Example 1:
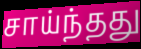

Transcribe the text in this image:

சாய்ந்தது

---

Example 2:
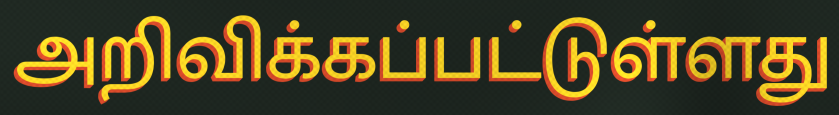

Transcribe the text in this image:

அறிவிக்கப்பட்டுள்ளது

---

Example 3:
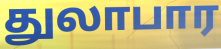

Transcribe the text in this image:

துலாபார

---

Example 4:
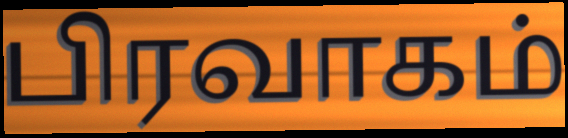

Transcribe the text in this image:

பிரவாகம்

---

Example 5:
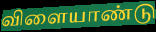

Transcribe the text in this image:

விளையாண்டு